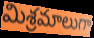
మిశ్రమాలుగా